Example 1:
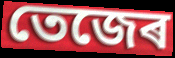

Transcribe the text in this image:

তেজেৰ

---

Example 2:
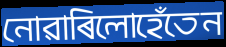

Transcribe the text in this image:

নোৱাৰিলোহেঁতেন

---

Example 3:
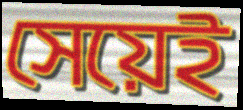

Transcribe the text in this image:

সেয়েই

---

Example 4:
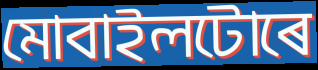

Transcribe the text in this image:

মোবাইলটোৰে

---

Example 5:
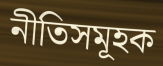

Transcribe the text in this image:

নীতিসমূহক